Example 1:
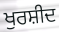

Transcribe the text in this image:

ਖੁਰਸ਼ੀਦ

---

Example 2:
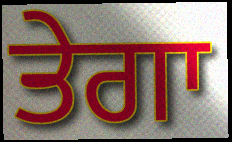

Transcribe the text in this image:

ਤੇਗਾ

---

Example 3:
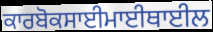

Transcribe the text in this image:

ਕਾਰਬੋਕਸਾਈਮਾਈਥਾਈਲ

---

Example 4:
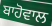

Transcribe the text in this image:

ਬਾਹੋਵਾਲ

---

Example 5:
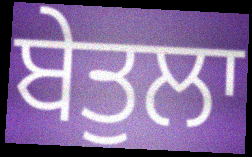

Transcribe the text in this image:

ਬੇਤੁਲਾ